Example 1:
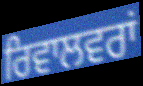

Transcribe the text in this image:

ਰਿਵਾਲਵਰਾਂ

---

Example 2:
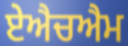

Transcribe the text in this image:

ਏਐਚਐਮ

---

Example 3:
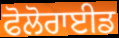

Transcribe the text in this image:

ਫੋਲੋਰਾਈਡ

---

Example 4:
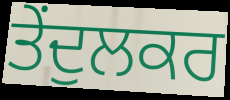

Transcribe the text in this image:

ਤੇਂਦੁਲਕਰ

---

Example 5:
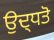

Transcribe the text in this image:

ਉਦ੍ਧਤੋ